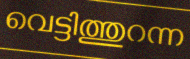
വെട്ടിത്തുറന്ന